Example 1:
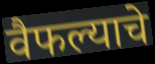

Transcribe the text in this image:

वैफल्याचे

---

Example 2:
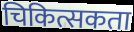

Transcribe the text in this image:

चिकित्सकता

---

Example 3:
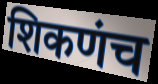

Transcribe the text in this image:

शिकणंच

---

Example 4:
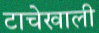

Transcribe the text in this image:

टाचेखाली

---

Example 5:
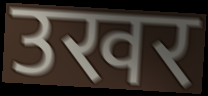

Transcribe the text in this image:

उखर